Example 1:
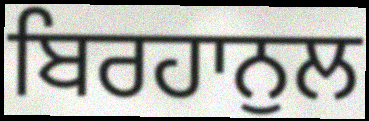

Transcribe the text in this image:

ਬਿਰਹਾਨੁਲ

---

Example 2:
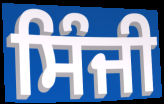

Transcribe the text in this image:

ਸਿੰਜੀ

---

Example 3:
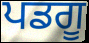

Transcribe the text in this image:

ਪਡਗੂ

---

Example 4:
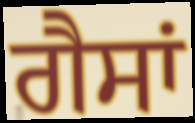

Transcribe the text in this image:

ਗੈਸਾਂ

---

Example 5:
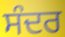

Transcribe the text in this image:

ਸੰਦਰ